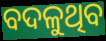
ବଦଳୁଥିବ